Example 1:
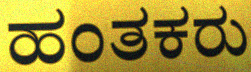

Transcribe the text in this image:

ಹಂತಕರು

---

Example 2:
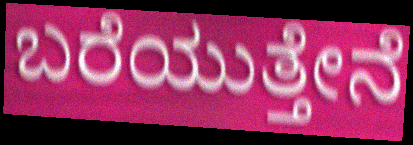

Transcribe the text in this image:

ಬರೆಯುತ್ತೇನೆ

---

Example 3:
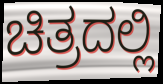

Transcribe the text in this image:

ಚಿತ್ರದಲ್ಲಿ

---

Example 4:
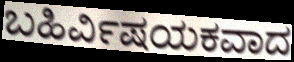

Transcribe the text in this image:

ಬಹಿರ್ವಿಷಯಕವಾದ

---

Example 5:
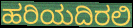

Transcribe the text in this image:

ಹರಿಯದಿರಲಿ